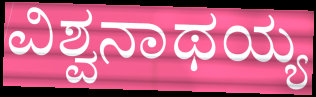
ವಿಶ್ವನಾಥಯ್ಯ